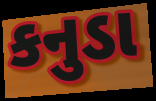
કનુડા